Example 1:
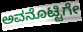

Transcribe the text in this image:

ಅವನೊಟ್ಟಿಗೇ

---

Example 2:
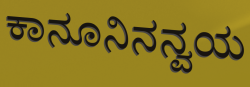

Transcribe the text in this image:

ಕಾನೂನಿನನ್ವಯ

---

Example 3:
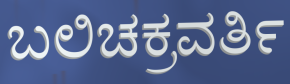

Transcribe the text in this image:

ಬಲಿಚಕ್ರವರ್ತಿ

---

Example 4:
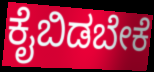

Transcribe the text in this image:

ಕೈಬಿಡಬೇಕೆ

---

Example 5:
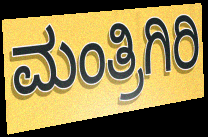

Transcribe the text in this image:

ಮಂತ್ರಿಗಿರಿ